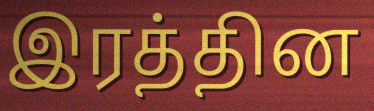
இரத்தின